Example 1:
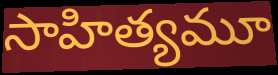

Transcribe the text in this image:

సాహిత్యమూ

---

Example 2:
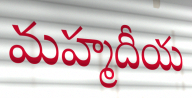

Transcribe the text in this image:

మహ్మదీయ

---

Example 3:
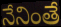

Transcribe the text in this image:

నేనింతే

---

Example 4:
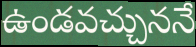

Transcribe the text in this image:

ఉండవచ్చుననే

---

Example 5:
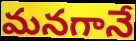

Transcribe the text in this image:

మనగానే